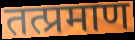
तत्प्रमाण